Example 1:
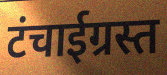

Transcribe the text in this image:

टंचाईग्रस्त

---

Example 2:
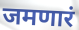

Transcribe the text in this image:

जमणारं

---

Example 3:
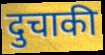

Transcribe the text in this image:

दुचाकी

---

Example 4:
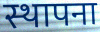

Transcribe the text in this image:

स्थापना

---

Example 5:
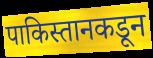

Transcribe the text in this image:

पाकिस्तानकडून